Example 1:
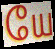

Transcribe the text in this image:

யே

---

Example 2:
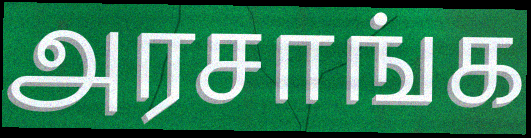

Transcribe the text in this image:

அரசாங்க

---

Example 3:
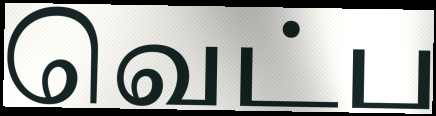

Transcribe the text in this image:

வெட்ப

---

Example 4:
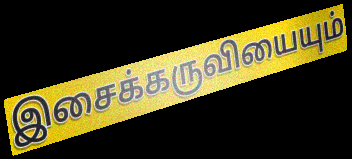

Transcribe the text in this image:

இசைக்கருவியையும்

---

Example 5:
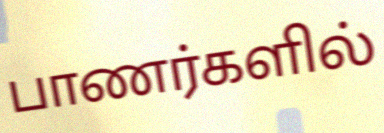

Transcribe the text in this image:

பாணர்களில்